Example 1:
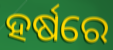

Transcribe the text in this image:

ହର୍ଷରେ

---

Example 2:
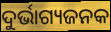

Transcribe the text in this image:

ଦୁର୍ଭାଗ୍ୟଜନକ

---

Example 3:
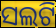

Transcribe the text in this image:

ସଲଟି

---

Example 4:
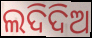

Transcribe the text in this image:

ଲଦିଦିଅ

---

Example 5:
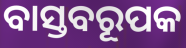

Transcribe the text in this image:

ବାସ୍ତବରୂପକ